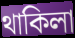
থাকিলা